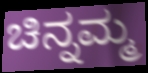
ಚಿನ್ನಮ್ಮ